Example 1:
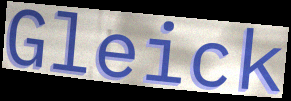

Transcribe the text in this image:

Gleick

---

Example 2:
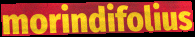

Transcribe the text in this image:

morindifolius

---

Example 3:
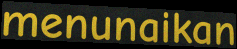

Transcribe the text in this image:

menunaikan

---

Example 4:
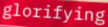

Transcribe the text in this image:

glorifying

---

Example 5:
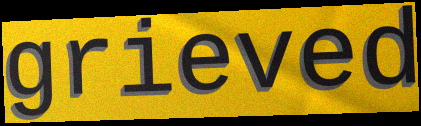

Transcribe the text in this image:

grieved